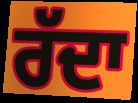
ਰੱਦਾ